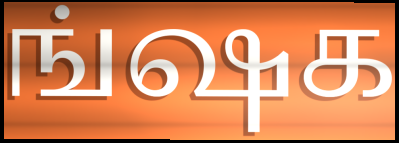
ங்ஷக